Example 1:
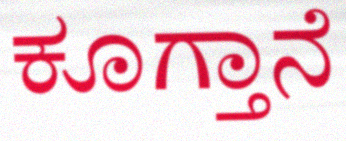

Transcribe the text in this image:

ಕೂಗ್ತಾನೆ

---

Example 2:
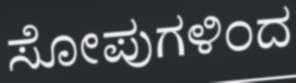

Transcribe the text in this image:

ಸೋಪುಗಳಿಂದ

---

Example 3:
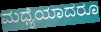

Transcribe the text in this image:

ಮಧ್ಯೆಯಾದರೂ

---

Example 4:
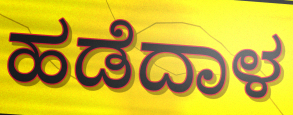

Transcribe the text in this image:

ಹಡೆದಾಳ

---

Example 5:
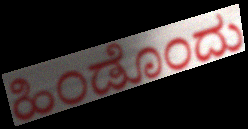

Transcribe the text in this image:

ಹಿಂಡೊಂದು